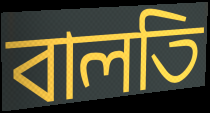
বালতি